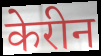
केरीन